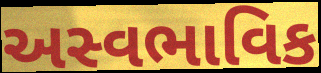
અસ્વભાવિક